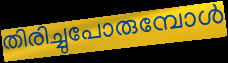
തിരിച്ചുപോരുമ്പോൾ